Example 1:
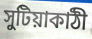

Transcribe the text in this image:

সুটিয়াকাঠী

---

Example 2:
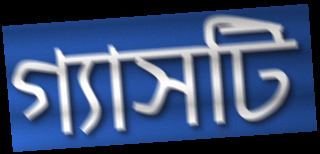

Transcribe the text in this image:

গ্যাসটি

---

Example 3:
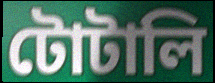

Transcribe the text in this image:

টোটালি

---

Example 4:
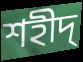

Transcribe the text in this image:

শহীদ্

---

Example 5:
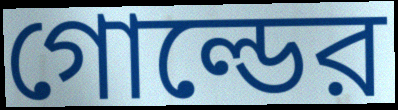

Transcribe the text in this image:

গোল্ডের